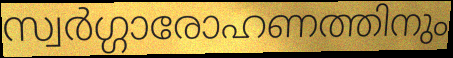
സ്വർഗ്ഗാരോഹണത്തിനും